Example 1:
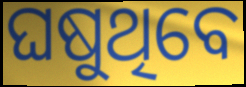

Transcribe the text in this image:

ଘଷୁଥିବେ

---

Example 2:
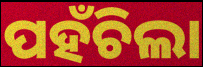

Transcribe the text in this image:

ପହଁଚିଲା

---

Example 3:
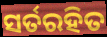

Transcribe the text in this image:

ସର୍ତରହିତ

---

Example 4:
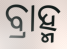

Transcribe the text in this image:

ବ୍ରାହ୍ମ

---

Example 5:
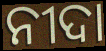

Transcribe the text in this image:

ନୀଦା